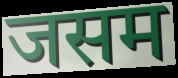
जसम